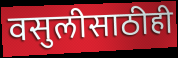
वसुलीसाठीही